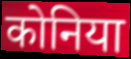
कोनिया